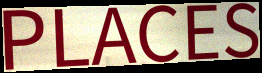
PLACES